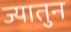
ज्यातुन